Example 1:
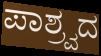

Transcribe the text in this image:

ಪಾಶ್ರ್ವದ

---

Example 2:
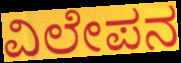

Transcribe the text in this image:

ವಿಲೇಪನ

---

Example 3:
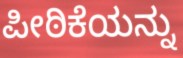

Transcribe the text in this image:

ಪೀಠಿಕೆಯನ್ನು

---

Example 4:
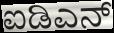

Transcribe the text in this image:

ಐಡಿಎನ್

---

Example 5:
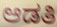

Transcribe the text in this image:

ಆಡತಿ